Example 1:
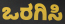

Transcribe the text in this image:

ಒರಗಿಸಿ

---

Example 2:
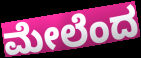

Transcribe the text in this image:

ಮೇಲೆಂದ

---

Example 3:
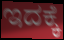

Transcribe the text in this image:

ಇದಕ್ಕೆ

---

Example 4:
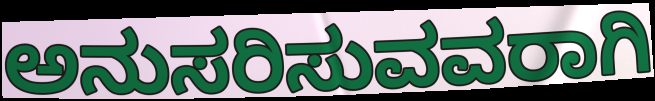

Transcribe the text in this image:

ಅನುಸರಿಸುವವರಾಗಿ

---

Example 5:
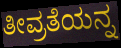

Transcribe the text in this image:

ತೀವ್ರತೆಯನ್ನ